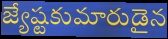
జ్యేష్టకుమారుడైన